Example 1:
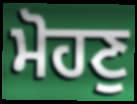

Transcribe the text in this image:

ਮੋਹਣੁ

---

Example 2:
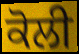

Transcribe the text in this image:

ਕੋਲੀ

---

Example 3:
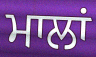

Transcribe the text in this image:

ਮਾਲਾਂ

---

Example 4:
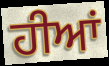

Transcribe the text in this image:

ਹੀਆਂ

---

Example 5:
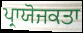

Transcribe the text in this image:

ਪ੍ਰਾਯੋਜਕਤਾ